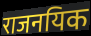
राजनयिक